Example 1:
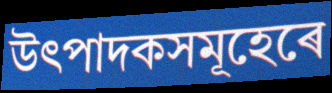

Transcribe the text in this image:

উৎপাদকসমূহেৰে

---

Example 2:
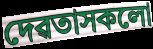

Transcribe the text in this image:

দেৱতাসকলো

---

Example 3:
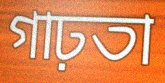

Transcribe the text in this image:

গাঢ়তা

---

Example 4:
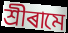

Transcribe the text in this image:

শ্ৰীৰামে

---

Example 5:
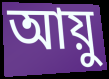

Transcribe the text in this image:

আয়ু